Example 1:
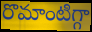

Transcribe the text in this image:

రొమాంటిగ్గా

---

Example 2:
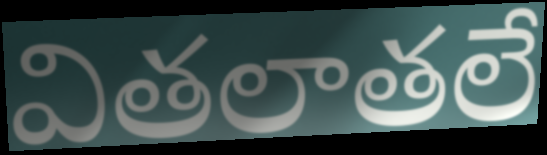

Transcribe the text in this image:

వితలాతలే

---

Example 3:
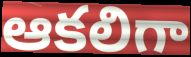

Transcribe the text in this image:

ఆకలిగా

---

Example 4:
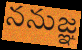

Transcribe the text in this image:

ననుజ్ఞ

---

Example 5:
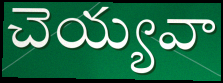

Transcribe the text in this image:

చెయ్యవా